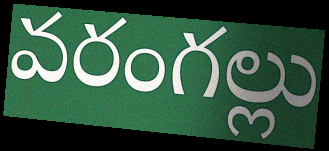
వరంగల్లు